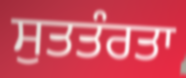
ਸੁਤਤੰਰਤਾ